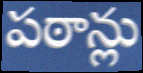
పఠాన్లు